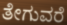
ತೇಗುವರೆ